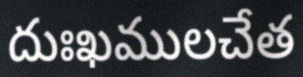
దుఃఖములచేత